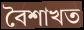
বৈশাখত